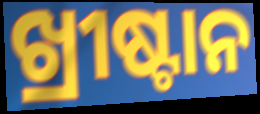
ଖ୍ରୀଷ୍ଟାନ